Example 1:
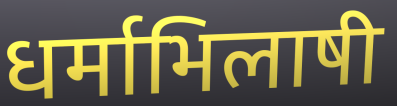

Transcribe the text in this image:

धर्माभिलाषी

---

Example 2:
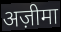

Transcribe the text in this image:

अज़ीमा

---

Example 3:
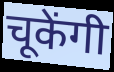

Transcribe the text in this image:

चूकेंगी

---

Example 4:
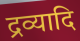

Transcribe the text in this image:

द्रव्यादि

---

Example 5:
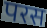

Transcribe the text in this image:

परस